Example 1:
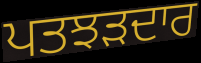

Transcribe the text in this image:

ਪਤਝੜਦਾਰ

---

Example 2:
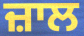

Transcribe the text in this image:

ਜ਼ਾਲ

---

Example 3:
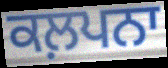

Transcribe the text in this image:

ਕਲ਼ਪਨਾ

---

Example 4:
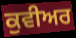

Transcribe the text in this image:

ਕੁਵੀਅਰ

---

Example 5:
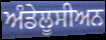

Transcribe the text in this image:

ਅੰਡੇਲੂਸੀਅਨ